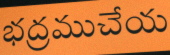
భద్రముచేయ